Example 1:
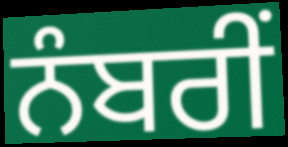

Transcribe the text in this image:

ਨੰਬਰੀਂ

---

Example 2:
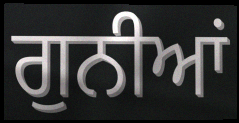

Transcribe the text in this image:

ਗੁਨੀਆਂ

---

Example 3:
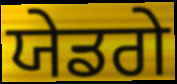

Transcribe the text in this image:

ਯੇਡਗੇ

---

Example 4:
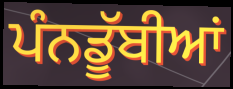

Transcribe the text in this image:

ਪੰਨਡੂੱਬੀਆਂ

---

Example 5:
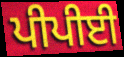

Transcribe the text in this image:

ਪੀਪੀਈ